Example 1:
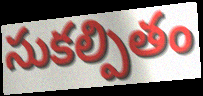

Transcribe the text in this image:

సుకల్పితం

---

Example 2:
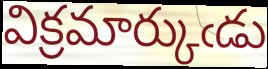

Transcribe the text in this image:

విక్రమార్కుఁడు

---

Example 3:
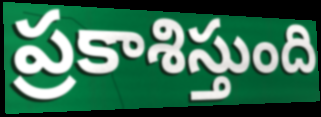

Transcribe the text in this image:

ప్రకాశిస్తుంది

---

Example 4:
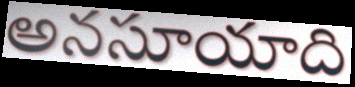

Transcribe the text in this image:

అనసూయాది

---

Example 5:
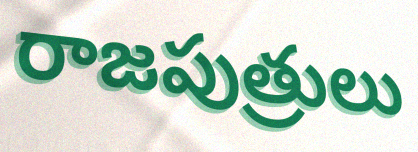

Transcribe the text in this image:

రాజపుత్రులు